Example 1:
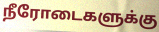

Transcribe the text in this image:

நீரோடைகளுக்கு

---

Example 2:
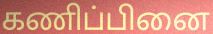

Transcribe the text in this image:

கணிப்பினை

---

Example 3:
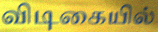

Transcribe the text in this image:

விடிகையில்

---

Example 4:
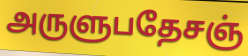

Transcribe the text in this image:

அருளுபதேசஞ்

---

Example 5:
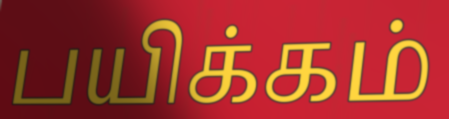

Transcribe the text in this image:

பயிக்கம்